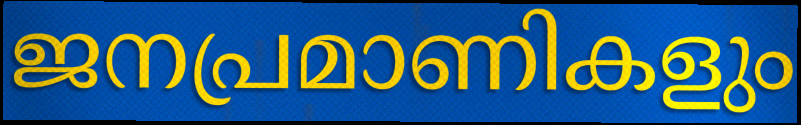
ജനപ്രമാണികളും